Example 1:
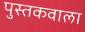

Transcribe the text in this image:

पुस्तकवाला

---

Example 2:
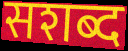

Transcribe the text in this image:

सशब्द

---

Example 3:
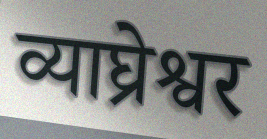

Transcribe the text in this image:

व्याघ्रेश्वर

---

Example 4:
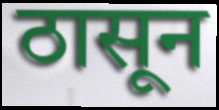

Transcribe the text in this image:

ठासून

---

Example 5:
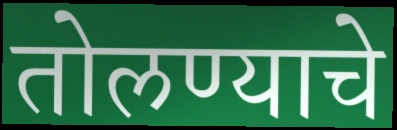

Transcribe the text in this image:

तोलण्याचे